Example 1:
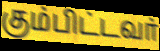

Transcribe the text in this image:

கும்பிட்டவர்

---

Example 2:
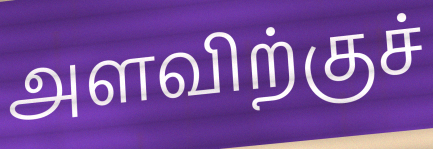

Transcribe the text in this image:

அளவிற்குச்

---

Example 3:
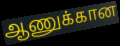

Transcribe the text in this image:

ஆணுக்கான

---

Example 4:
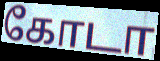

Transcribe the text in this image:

கோடா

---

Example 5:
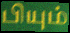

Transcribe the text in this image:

பியும்